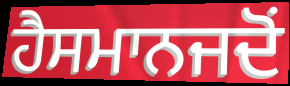
ਹੈਸਮਾਨਜਦੋਂ